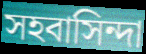
সহবাসিন্দা